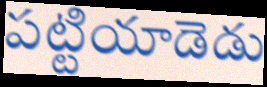
పట్టియాడెడు